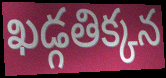
ఖడ్గతిక్కన